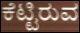
ಕೆಟ್ಟಿರುವ